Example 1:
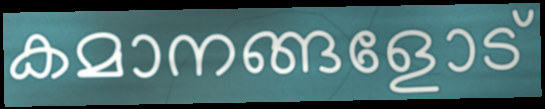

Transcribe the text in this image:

കമാനങ്ങളോട്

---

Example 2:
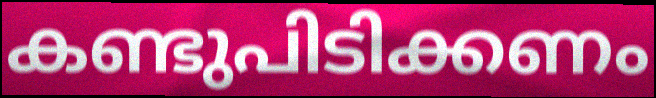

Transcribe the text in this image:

കണ്ടുപിടിക്കണം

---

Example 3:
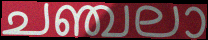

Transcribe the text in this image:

ചഞ്ചലാ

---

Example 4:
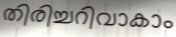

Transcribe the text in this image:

തിരിച്ചറിവാകാം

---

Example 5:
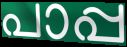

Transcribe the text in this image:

പാപ്പ